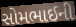
સોમભાઈની